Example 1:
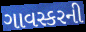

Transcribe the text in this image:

ગાવસ્કરની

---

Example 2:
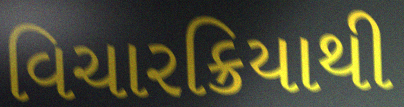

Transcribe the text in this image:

વિચારક્રિયાથી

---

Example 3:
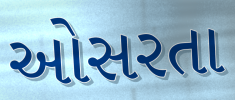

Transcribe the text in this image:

ઓસરતા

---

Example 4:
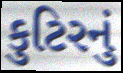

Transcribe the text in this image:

કુટિરનું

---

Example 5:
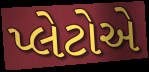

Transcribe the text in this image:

પ્લેટોએ